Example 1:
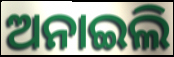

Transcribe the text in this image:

ଅନାଇଲି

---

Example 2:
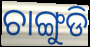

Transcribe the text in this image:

ଚାଙ୍ଗୁଡି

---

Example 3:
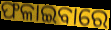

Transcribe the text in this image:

ଫଳାଇବାରେ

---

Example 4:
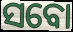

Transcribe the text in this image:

ସବୋ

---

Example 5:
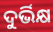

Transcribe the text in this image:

ଦୁର୍ଭିକ୍ଷ